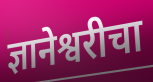
ज्ञानेश्वरीचा